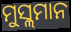
ମୁସ୍ଲମାନ